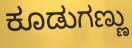
ಕೂಡುಗಣ್ಣು